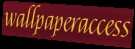
wallpaperaccess